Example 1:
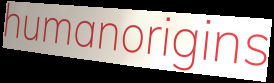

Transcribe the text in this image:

humanorigins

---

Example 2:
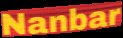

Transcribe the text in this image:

Nanbar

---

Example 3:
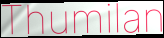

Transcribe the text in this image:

Thumilan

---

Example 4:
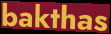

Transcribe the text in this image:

bakthas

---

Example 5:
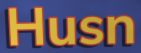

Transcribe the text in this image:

Husn